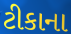
ટીકાના